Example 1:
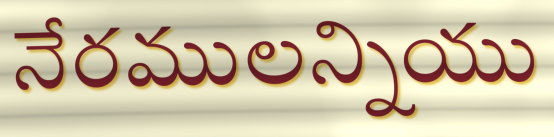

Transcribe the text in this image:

నేరములన్నియు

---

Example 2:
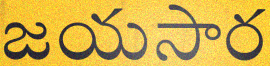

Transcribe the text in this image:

జయసార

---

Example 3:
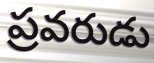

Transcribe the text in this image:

ప్రవరుడు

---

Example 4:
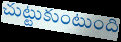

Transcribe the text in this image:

చుట్టుకుంటుంది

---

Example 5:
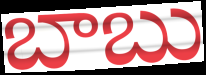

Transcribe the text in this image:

బాబు